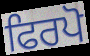
ਫਿਰਪੋ